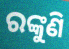
ରଙ୍କୁଣି